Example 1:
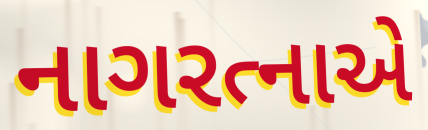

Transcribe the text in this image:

નાગરત્નાએ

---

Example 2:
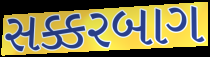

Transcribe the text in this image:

સક્કરબાગ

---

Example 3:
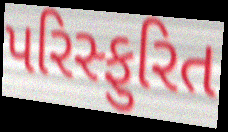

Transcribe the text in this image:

પરિસ્ફુરિત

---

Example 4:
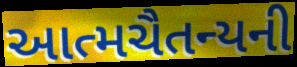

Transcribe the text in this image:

આત્મચૈતન્યની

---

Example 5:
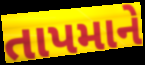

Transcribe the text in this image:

તાપમાને